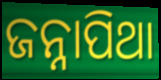
ଜନ୍ନାପିଥା